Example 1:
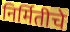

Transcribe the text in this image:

निर्मितीचे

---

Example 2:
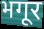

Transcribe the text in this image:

भगूर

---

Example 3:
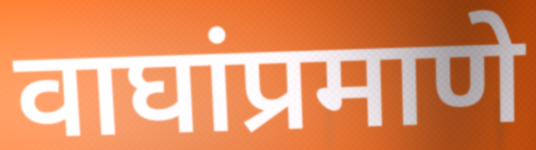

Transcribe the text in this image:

वाघांप्रमाणे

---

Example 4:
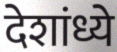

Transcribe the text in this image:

देशांध्ये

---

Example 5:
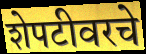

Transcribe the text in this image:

शेपटीवरचे